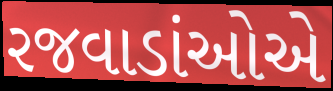
રજવાડાંઓએ